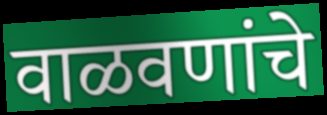
वाळवणांचे